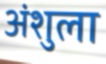
अंशुला